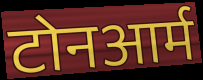
टोनआर्म